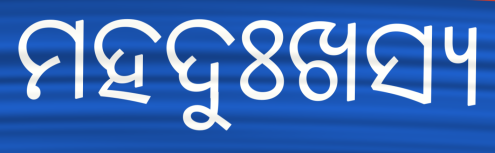
ମହଦୁଃଖସ୍ୟ